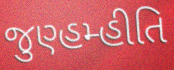
જુણ્હમ્હીતિ